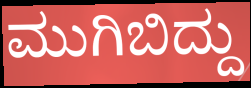
ಮುಗಿಬಿದ್ದು